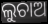
ଲୁଚାଅ